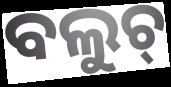
ବଲୁଚ୍